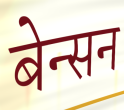
बेन्सन